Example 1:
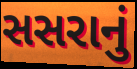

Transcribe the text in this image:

સસરાનું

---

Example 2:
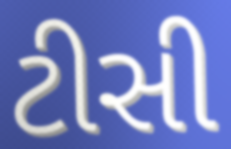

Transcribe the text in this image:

ટીસી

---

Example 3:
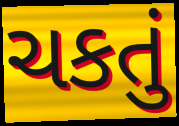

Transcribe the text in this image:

ચકતું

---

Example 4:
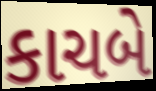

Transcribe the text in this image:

કાચબે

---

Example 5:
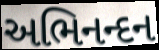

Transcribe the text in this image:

અભિનન્દન